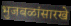
भुजबळांसारखे